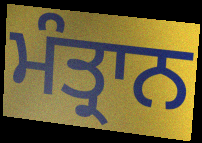
ਮੰਤ੍ਰਾਨ